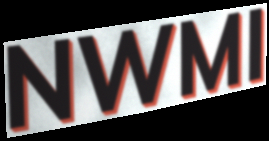
NWMI